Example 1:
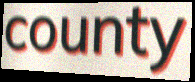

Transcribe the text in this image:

county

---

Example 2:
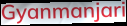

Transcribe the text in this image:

Gyanmanjari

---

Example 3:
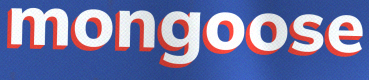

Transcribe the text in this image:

mongoose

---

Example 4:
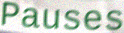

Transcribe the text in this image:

Pauses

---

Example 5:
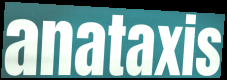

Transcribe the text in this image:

anataxis